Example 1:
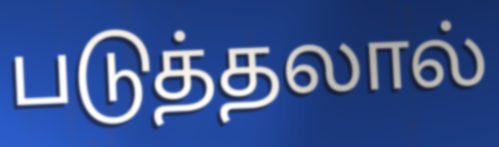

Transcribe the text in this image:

படுத்தலால்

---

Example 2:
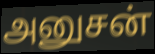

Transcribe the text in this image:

அனுசன்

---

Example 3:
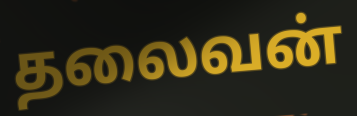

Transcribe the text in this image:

தலைவன்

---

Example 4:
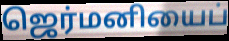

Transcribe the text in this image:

ஜெர்மனியைப்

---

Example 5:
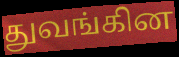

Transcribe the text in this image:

துவங்கின